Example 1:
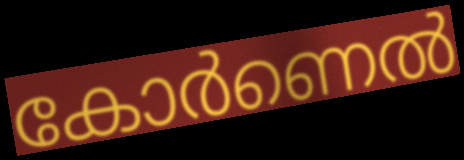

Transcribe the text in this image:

കോർണെൽ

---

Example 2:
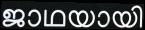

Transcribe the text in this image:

ജാഥയായി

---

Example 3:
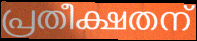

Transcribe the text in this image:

പ്രതീക്ഷതന്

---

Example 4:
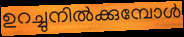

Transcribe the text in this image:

ഉറച്ചുനിൽക്കുമ്പോൾ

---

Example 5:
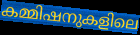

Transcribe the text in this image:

കമ്മിഷനുകളിലെ